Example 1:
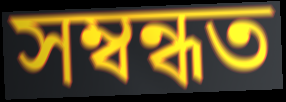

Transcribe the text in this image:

সম্বন্ধত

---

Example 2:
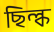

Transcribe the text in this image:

ছিল্ক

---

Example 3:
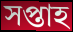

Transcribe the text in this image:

সপ্তাহ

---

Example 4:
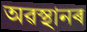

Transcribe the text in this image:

অৱস্থানৰ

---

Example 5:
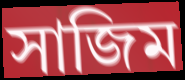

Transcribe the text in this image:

সাজিম